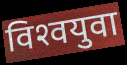
विश्वयुवा